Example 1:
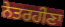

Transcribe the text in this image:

ਨੇਤਰਹੀਣਾ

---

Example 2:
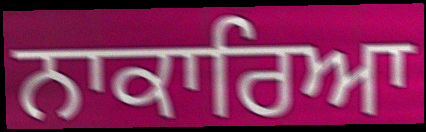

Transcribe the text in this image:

ਨਾਕਾਰਿਆ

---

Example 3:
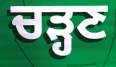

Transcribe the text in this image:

ਚੜ੍ਹਣ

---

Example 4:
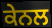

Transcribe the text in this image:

ਕੇਨਲ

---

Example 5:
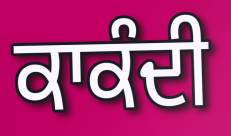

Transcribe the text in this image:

ਕਾਕੰਦੀ